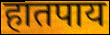
हातपाय